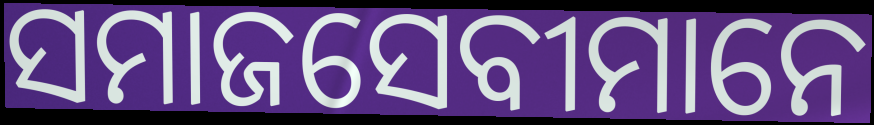
ସମାଜସେବୀମାନେ